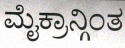
ಮೈಕ್ರಾನ್ಗಿಂತ